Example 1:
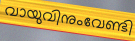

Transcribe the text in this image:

വായുവിനുംവേണ്ടി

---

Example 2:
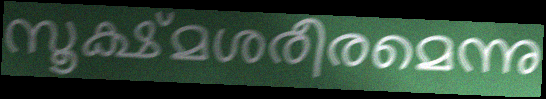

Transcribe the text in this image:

സൂക്ഷ്മശരീരമെന്നു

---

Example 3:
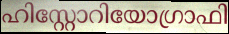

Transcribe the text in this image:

ഹിസ്റ്റോറിയോഗ്രാഫി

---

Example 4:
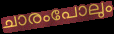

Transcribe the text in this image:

ചാരംപോലും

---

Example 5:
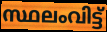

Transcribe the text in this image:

സ്ഥലംവിട്ട്